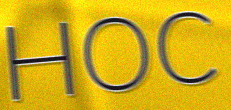
HOC